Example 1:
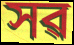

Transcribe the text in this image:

সৱ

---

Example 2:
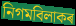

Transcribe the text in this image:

নিগমবিলাকৰ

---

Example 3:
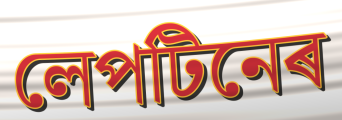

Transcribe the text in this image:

লেপটিনেৰ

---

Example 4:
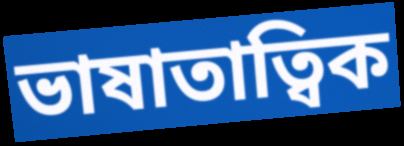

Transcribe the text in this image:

ভাষাতাত্বিক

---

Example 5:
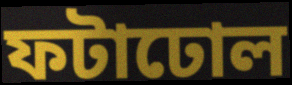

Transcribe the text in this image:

ফটাঢোল